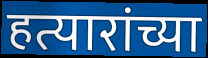
हत्यारांच्या